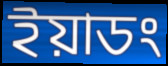
ইয়াডং